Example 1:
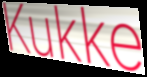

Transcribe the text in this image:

Kukke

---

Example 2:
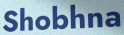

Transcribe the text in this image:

Shobhna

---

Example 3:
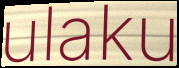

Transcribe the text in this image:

ulaku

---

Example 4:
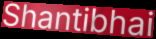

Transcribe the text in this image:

Shantibhai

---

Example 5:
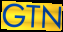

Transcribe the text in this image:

GTN